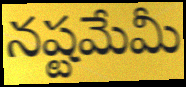
నష్టమేమీ